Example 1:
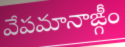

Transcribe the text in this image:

వేపమానాఙ్గీం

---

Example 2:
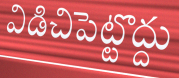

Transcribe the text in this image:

విడిచిపెట్టొద్దు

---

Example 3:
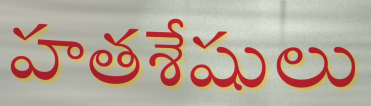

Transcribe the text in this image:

హతశేషులు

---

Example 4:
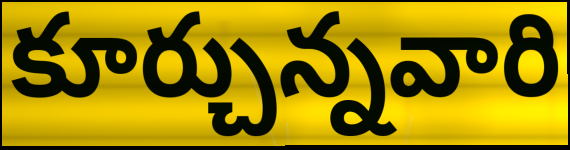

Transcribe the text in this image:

కూర్చున్నవారి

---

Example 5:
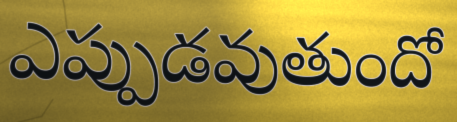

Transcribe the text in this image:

ఎప్పుడవుతుందో